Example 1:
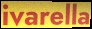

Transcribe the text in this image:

ivarella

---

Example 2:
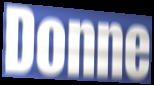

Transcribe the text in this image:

Donne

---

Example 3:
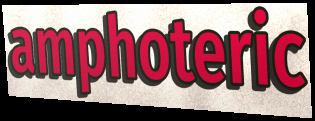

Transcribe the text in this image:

amphoteric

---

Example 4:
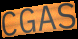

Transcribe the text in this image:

CGAS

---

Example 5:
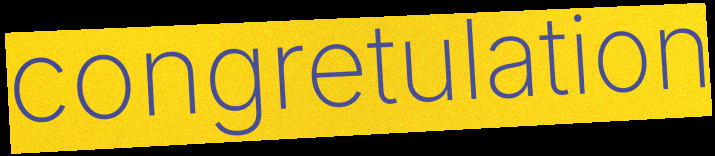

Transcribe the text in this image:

congretulation